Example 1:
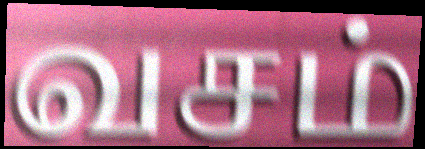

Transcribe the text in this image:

வசம்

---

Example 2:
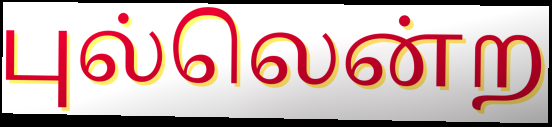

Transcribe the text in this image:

புல்லென்ற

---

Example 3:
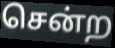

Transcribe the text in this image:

சென்ற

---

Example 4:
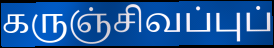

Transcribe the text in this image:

கருஞ்சிவப்புப்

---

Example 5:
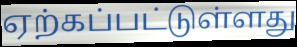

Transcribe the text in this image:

ஏற்கப்பட்டுள்ளது